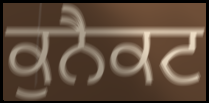
ਕੁਨੈਕਟ